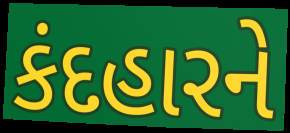
કંદહારને